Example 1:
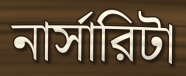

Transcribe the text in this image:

নার্সারিটা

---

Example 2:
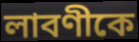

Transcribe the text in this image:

লাবণীকে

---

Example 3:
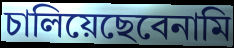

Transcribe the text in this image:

চালিয়েছেবেনামি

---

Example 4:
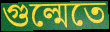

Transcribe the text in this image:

গুল্মেতে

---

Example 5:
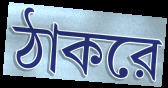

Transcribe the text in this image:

ঠাকরে